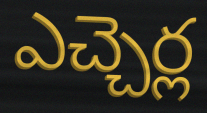
ఎచ్చెర్ల